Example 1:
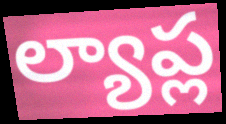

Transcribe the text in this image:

ల్యాప్ల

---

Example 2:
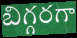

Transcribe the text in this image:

బిగ్గరగా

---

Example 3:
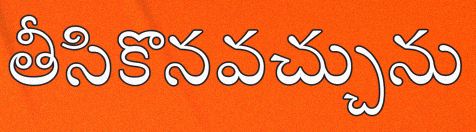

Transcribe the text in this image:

తీసికొనవచ్చును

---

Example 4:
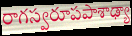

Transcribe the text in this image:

రాగస్వరూపపాశాఢ్యా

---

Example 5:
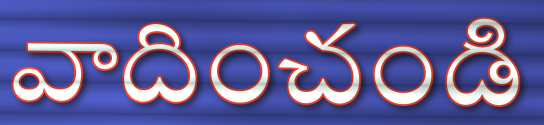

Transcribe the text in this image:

వాదించండి